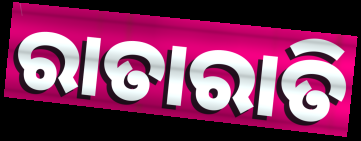
ରାତାରାତି